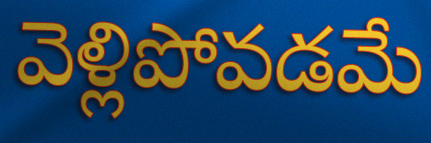
వెళ్లిపోవడమే